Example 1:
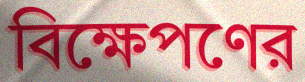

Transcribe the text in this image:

বিক্ষেপণের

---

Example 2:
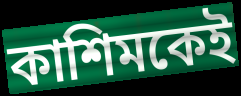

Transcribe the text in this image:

কাশিমকেই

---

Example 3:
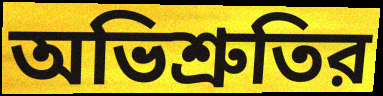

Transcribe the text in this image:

অভিশ্রুতির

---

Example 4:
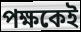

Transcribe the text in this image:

পক্ষকেই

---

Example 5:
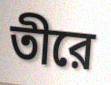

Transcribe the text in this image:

তীরে